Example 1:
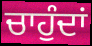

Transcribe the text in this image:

ਚਾਹੁੰਦਾਂ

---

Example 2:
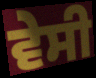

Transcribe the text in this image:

ਵੇਸੀ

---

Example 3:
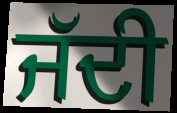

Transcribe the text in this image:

ਜੱਦੀ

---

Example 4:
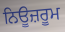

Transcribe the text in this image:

ਨਿਊਜ਼ਰੂਮ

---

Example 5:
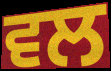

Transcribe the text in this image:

ਵਲ